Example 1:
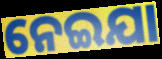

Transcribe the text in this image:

ନେଇଯା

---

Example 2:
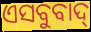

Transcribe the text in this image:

ଏସବୁବାଦ୍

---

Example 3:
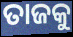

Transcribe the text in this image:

ତାଜକୁ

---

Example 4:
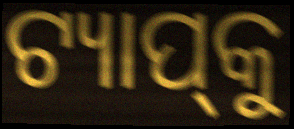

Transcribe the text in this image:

ଟ୍ୟାପ୍‌କୁ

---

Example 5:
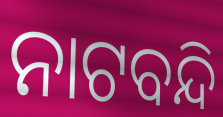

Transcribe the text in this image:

ନାଟବନ୍ଦି